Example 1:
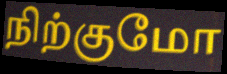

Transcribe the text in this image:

நிற்குமோ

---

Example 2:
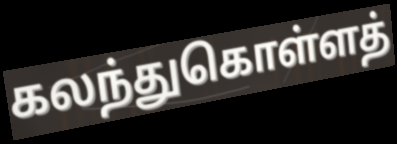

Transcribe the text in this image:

கலந்துகொள்ளத்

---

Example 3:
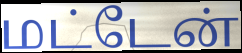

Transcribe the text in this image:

மட்டேன்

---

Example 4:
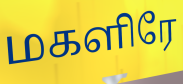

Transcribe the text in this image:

மகளிரே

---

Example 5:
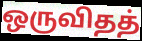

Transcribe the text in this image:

ஒருவிதத்